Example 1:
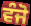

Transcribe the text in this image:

ਵੰਜੋ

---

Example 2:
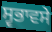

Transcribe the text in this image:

ਸ੍ਵਭਾਵਸੇ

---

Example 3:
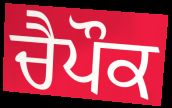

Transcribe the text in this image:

ਚੈਪੌਕ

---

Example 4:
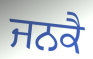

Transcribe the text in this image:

ਜਨਕੈ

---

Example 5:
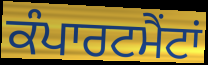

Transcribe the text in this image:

ਕੰਪਾਰਟਮੈਂਟਾਂ